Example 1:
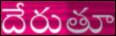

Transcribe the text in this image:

దేరుతూ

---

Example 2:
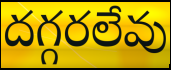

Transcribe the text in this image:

దగ్గరలేవు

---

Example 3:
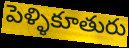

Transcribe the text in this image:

పెళ్ళికూతురు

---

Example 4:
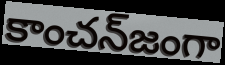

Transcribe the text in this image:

కాంచన్‌జంగా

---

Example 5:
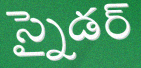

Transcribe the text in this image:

స్నైడర్